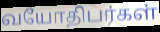
வயோதிபர்கள்